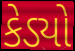
કેડ્યો